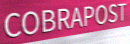
COBRAPOST